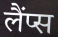
लैंप्स